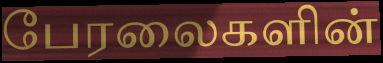
பேரலைகளின்